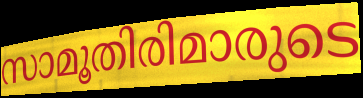
സാമൂതിരിമാരുടെ